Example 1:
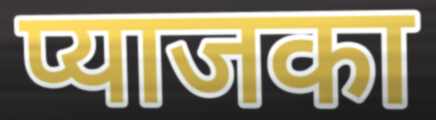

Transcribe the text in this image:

प्याजका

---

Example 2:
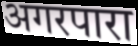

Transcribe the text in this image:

अगरपारा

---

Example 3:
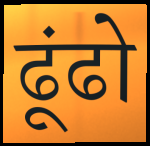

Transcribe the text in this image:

ढूंढो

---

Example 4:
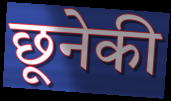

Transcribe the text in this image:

छूनेकी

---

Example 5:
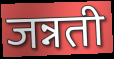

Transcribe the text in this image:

जन्नती